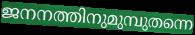
ജനനത്തിനുമുമ്പുതന്നെ